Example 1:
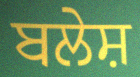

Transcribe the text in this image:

ਬਲੇਸ਼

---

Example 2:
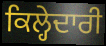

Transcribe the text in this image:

ਕਿਲ੍ਹੇਦਾਰੀ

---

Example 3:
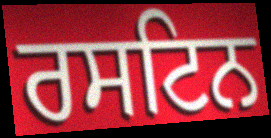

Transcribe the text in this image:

ਰਸਟਿਨ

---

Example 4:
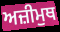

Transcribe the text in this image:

ਅਜ਼ੀਮੁਥ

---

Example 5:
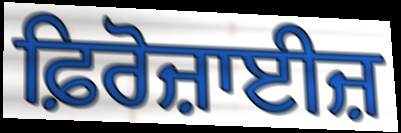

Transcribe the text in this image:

ਫ਼ਿਰੋਜ਼ਾਈਜ਼